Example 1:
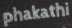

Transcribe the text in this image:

phakathi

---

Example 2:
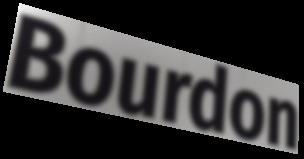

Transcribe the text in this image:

Bourdon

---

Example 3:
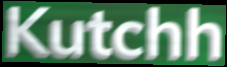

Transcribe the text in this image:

Kutchh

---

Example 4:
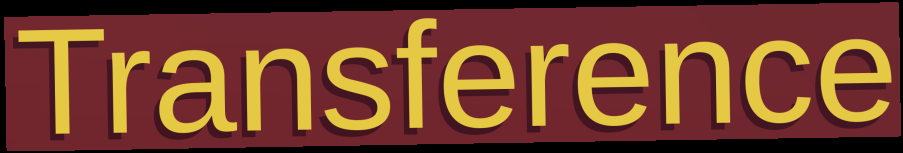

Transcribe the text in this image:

Transference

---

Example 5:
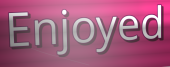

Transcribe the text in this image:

Enjoyed